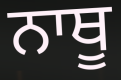
ਨਾਥੂ